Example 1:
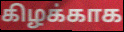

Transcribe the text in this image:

கிழக்காக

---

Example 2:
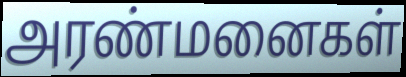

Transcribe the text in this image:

அரண்மனைகள்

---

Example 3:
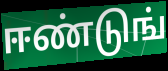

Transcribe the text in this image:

ஈண்டுங்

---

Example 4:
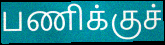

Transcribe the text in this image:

பணிக்குச்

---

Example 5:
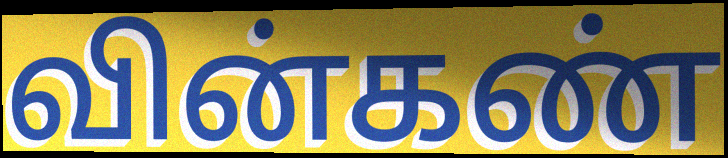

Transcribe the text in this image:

வின்கண்